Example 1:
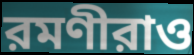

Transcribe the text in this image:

রমণীরাও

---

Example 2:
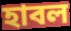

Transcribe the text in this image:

হাবল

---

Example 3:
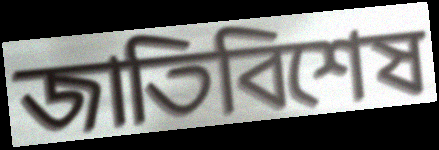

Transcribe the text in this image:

জাতিবিশেষ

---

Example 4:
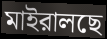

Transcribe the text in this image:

মাইরালছে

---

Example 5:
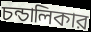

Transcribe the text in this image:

চন্ডালিকার